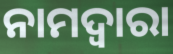
ନାମଦ୍ଵାରା